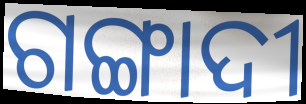
ଗଙ୍ଗାଦୀ